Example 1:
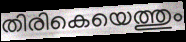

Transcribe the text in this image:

തിരികെയെത്തും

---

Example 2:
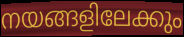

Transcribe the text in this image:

നയങ്ങളിലേക്കും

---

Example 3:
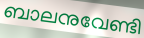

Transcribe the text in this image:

ബാലനുവേണ്ടി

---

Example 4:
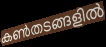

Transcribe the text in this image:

കൺതടങ്ങളിൽ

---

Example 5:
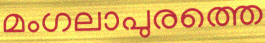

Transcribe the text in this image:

മംഗലാപുരത്തെ